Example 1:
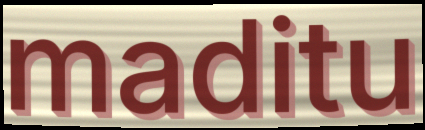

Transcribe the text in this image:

maditu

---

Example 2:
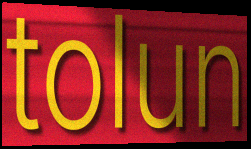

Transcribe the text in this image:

tolun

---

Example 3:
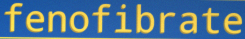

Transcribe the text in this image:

fenofibrate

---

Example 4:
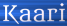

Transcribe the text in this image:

Kaari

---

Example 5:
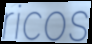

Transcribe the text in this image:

ricos